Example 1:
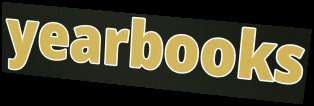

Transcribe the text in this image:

yearbooks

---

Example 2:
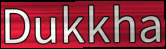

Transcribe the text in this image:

Dukkha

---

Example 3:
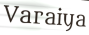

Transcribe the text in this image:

Varaiya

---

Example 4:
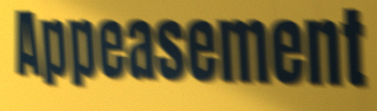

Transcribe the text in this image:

Appeasement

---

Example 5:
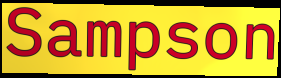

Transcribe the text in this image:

Sampson